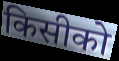
किसीको